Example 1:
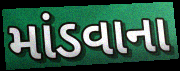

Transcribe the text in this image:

માંડવાના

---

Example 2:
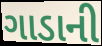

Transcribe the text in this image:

ગાડાની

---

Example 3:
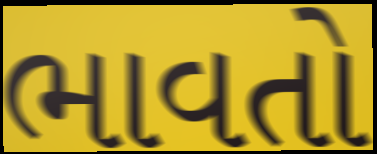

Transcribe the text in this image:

ભાવતો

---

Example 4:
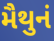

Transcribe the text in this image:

મૈથુનં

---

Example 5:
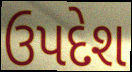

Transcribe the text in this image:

ઉપદેશ